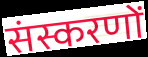
संस्करणों